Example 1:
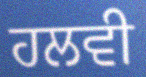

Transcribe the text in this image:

ਹਲਵੀ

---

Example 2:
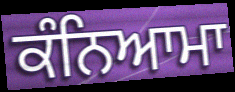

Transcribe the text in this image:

ਕੰਨਿਆਮਾ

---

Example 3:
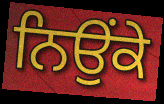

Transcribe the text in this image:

ਨਿਉਂਕੇ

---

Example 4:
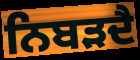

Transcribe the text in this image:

ਨਿਬੜਦੈ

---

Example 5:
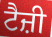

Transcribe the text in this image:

ਟੈਜ਼ੀ